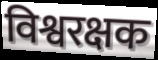
विश्वरक्षक